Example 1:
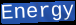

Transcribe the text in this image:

Energy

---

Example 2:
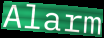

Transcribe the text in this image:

Alarm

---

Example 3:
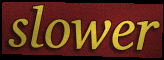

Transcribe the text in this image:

slower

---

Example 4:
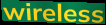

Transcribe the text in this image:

wireless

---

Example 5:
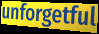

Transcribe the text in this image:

unforgetful